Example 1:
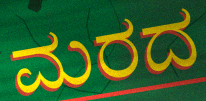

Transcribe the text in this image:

ಮರದ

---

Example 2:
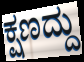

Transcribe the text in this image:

ಕ್ಷಣದ್ದು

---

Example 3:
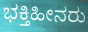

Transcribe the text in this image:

ಭಕ್ತಿಹೀನರು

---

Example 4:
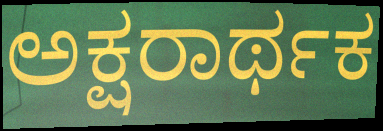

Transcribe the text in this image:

ಅಕ್ಷರಾರ್ಥಕ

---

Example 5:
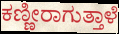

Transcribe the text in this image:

ಕಣ್ಣೀರಾಗುತ್ತಾಳೆ